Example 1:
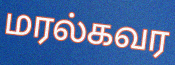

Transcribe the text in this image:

மரல்கவர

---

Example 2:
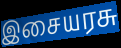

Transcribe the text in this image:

இசையரசு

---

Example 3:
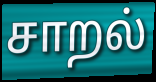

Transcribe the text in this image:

சாறல்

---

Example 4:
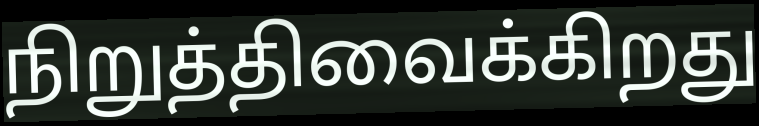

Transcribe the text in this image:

நிறுத்திவைக்கிறது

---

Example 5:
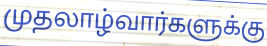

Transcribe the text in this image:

முதலாழ்வார்களுக்கு